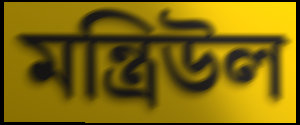
মন্ত্রিউল